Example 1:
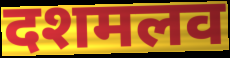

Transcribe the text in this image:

दशमलव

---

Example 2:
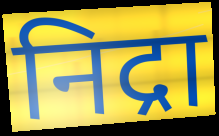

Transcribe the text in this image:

निद्रा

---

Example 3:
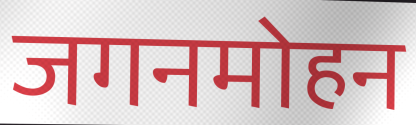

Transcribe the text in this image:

जगनमोहन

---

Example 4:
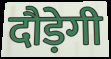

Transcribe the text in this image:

दौड़ेगी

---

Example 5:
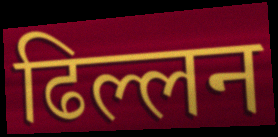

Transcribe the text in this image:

ढिल्लन